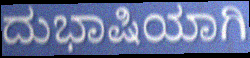
ದುಭಾಷಿಯಾಗಿ